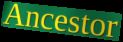
Ancestor